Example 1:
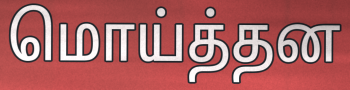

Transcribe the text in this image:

மொய்த்தன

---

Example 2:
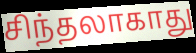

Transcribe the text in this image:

சிந்தலாகாது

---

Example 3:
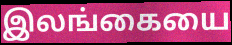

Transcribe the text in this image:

இலங்கையை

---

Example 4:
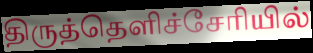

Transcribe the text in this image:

திருத்தெளிச்சேரியில்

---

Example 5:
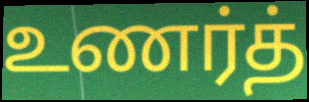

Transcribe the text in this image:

உணர்த்